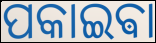
ପକାଇଵା